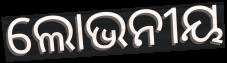
ଲୋଭନୀୟ